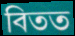
বিতত